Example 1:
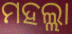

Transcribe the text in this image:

ମହଲ୍ଲା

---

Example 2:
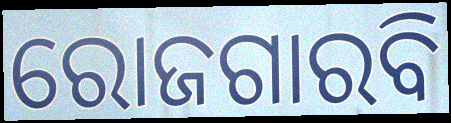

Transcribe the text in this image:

ରୋଜଗାରବି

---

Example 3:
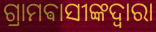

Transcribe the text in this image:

ଗ୍ରାମଵାସୀଙ୍କଦ୍ୱାରା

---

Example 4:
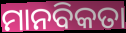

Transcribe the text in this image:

ମାନବିକତା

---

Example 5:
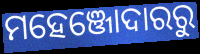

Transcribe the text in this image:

ମହେଞ୍ଜୋଦାରରୁ